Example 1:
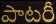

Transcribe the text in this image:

పాటరీ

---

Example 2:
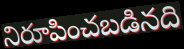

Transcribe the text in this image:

నిరూపించబడినది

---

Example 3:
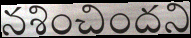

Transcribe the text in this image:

నశించిందని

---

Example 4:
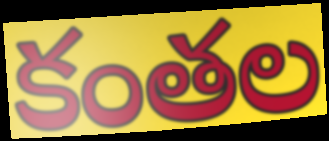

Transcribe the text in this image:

కంతల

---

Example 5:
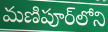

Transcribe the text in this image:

మణిపూర్‌లోని